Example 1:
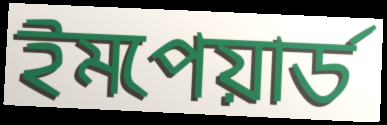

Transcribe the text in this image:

ইমপেয়াৰ্ড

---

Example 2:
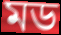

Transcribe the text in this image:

মড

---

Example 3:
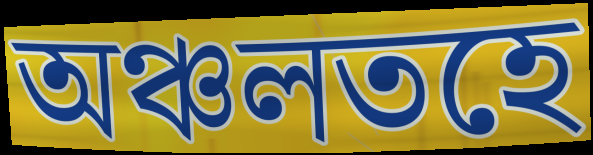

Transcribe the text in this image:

অঞ্চলতহে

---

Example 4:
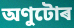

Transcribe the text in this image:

অণুটোৰ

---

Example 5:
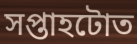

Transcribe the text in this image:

সপ্তাহটোত